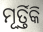
ମୂର୍ତ୍ତିକି